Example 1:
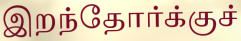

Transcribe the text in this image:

இறந்தோர்க்குச்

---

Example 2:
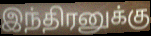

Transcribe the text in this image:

இந்திரனுக்கு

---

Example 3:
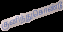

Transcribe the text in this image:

குனிந்துகொண்டு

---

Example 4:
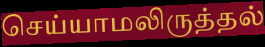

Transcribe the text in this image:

செய்யாமலிருத்தல்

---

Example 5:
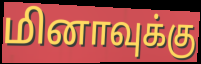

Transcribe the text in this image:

மினாவுக்கு